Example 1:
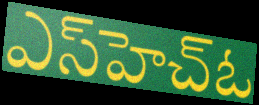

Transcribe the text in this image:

ఎస్‌హెచ్ఓ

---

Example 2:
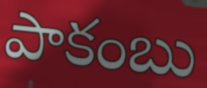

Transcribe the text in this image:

పాకంబు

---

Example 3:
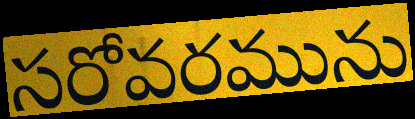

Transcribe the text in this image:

సరోవరమును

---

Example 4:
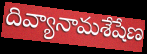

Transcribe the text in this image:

దివ్యానామశేషేణ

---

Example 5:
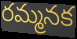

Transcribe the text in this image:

రమ్మనక